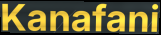
Kanafani